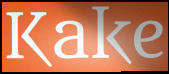
Kake